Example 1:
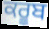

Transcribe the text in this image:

ਕਰੂਬ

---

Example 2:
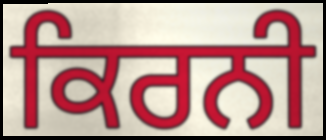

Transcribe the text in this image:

ਕਿਰਨੀ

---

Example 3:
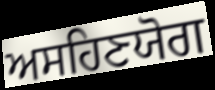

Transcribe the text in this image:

ਅਸਹਿਣਯੋਗ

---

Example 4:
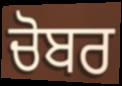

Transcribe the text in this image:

ਚੋਬਰ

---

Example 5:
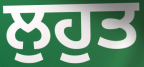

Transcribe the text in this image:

ਲੁਹੁਤ